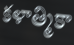
కళాత్మికా